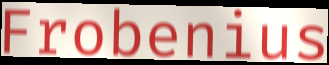
Frobenius